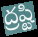
ద్రష్టి